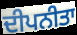
ਦੀਪਨੀਤਾ